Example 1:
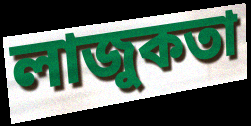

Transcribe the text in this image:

লাজুকতা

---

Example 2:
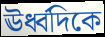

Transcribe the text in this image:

ঊর্ধ্বদিকে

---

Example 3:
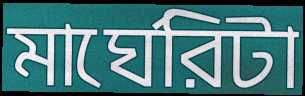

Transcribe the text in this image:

মার্ঘেরিটা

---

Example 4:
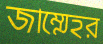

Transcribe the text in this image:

জাম্মেহর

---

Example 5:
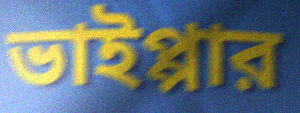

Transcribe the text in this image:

ভাইপ্পার